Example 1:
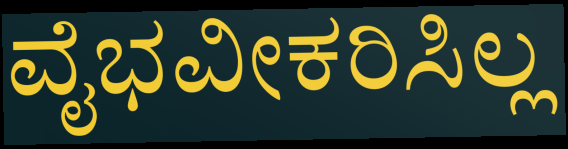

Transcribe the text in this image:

ವೈಭವೀಕರಿಸಿಲ್ಲ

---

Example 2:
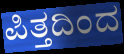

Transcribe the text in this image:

ಪಿತ್ತದಿಂದ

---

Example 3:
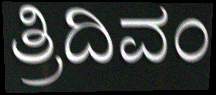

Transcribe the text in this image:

ತ್ರಿದಿವಂ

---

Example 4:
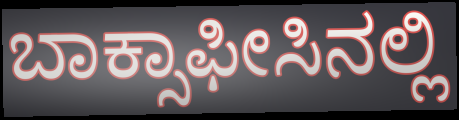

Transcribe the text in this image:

ಬಾಕ್ಸಾಫೀಸಿನಲ್ಲಿ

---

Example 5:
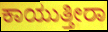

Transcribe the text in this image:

ಕಾಯುತ್ತೀರಾ